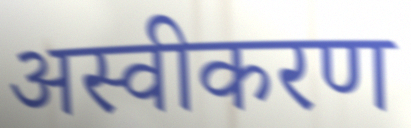
अस्वीकरण